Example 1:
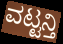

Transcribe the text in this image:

ವಟ್ಟನ್ತಿ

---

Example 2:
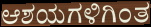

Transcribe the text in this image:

ಆಶಯಗಳಿಗಿಂತ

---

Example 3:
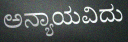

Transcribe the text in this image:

ಅನ್ಯಾಯವಿದು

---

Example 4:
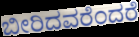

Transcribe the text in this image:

ಬೀರಿದವರೆಂದರೆ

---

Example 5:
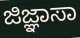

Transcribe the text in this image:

ಜಿಜ್ಞಾಸಾ